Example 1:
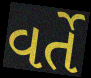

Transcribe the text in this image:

વર્તે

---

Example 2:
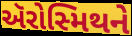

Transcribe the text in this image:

ઍરોસ્મિથને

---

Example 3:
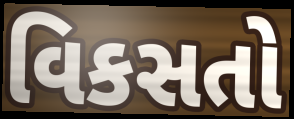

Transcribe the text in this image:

વિકસતો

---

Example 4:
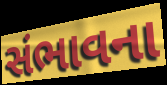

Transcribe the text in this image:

સંભાવના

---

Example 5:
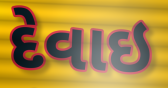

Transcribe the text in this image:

દેવાઇ